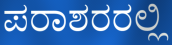
ಪರಾಶರರಲ್ಲಿ